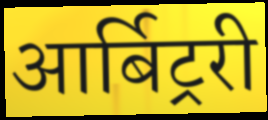
आर्बिट्ररी